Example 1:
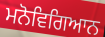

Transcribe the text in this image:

ਮਨੋਵਿਗਿਆਨ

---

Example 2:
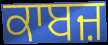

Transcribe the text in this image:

ਕਾਬਜ਼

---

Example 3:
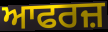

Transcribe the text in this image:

ਆਫਰਜ਼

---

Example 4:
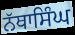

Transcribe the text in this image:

ਨੱਥਾਸਿੰਘ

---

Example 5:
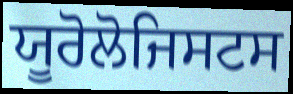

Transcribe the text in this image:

ਯੂਰੋਲੋਜਿਸਟਸ